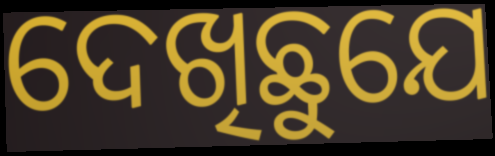
ଦେଖିଛୁଯେ